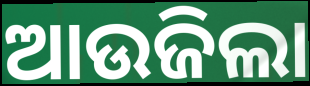
ଆଉଜିଲା